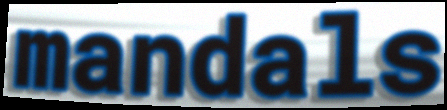
mandals